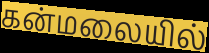
கன்மலையில்